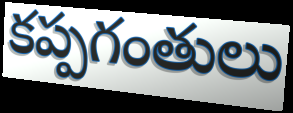
కప్పగంతులు